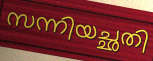
സന്നിയച്ഛതി